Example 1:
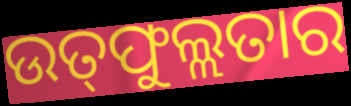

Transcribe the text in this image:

ଉତ୍‌ଫୁଲ୍ଲତାର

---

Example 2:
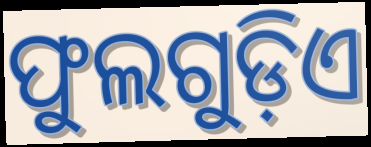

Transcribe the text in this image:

ଫୁଲଗୁଡ଼ିଏ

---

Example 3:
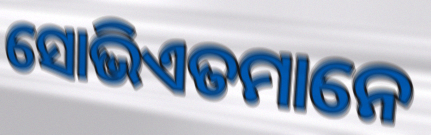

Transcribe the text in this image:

ସୋଭିଏତମାନେ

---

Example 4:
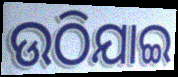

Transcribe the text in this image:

ଉଠିଯାଇ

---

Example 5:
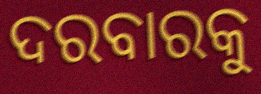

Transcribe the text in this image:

ଦରବାରକୁ